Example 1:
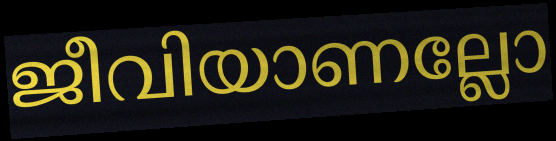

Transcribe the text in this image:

ജീവിയാണല്ലോ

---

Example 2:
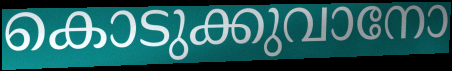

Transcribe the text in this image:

കൊടുക്കുവാനോ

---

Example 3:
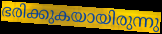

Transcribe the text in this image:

ഭരിക്കുകയായിരുന്നു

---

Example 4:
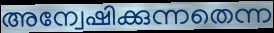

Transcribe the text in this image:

അന്വേഷിക്കുന്നതെന്ന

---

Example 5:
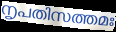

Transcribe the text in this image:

നൃപതിസത്തമഃ